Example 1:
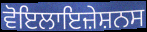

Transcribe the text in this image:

ਵੋਇਲਾਇਜ਼ੇਸ਼ਨਸ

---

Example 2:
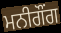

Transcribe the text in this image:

ਮਨੀਗੌਂਗ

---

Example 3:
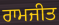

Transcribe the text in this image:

ਰਾਮਜੀਤ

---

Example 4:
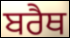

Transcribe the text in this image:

ਬਰੈਥ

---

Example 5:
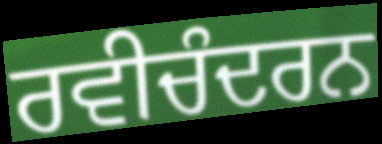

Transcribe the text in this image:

ਰਵੀਚੰਦਰਨ